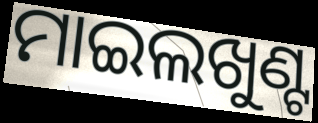
ମାଇଲଖୁଣ୍ଟ